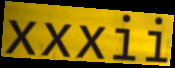
xxxii